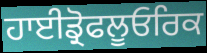
ਹਾਈਡ੍ਰੋਫਲੂਓਰਿਕ